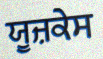
ਯੂਜ਼ਕੇਸ